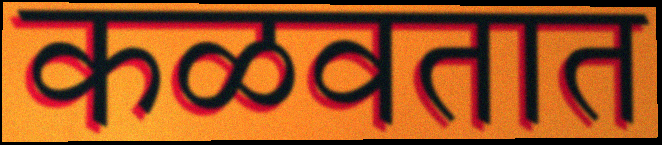
कळवतात